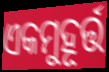
ଏକମୁହୂର୍ତ୍ତ